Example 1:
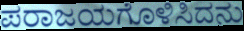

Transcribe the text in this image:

ಪರಾಜಯಗೊಳಿಸಿದನು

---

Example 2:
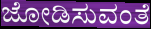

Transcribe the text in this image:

ಜೋಡಿಸುವಂತೆ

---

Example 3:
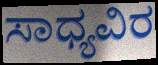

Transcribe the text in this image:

ಸಾಧ್ಯವಿರ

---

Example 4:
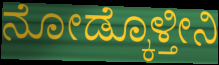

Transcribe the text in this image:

ನೋಡ್ಕೊಳ್ತೀನಿ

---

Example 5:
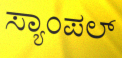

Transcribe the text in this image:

ಸ್ಯಾಂಪಲ್